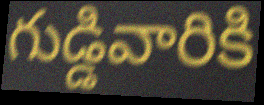
గుడ్డివారికి